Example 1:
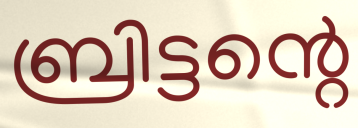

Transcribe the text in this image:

ബ്രിട്ടന്റെ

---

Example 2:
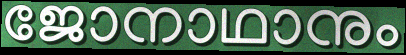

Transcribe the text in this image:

ജോനാഥാനും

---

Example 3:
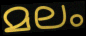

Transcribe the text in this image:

മലം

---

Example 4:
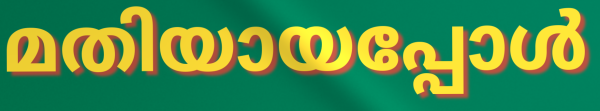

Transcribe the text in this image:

മതിയായപ്പോൾ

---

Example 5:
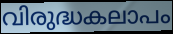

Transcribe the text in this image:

വിരുദ്ധകലാപം